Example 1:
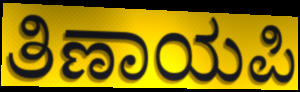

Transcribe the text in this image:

ತಿಣಾಯಪಿ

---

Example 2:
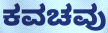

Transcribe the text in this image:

ಕವಚವು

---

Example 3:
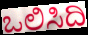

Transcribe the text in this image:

ಒಲಿಸಿದಿ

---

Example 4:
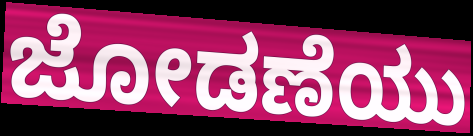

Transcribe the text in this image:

ಜೋಡಣೆಯು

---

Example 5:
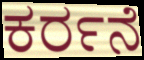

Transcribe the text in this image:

ಕರ್ರನೆ